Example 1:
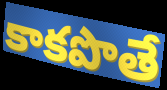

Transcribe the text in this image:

కాకపొతే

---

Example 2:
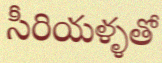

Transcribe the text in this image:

సీరియళ్ళతో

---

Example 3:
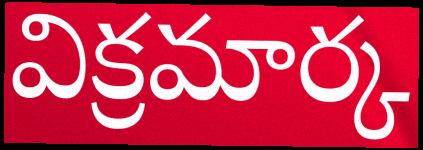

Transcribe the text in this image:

విక్రమార్క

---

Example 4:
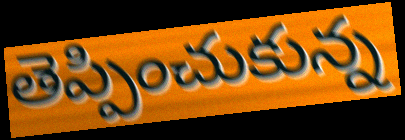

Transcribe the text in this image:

తెప్పించుకున్న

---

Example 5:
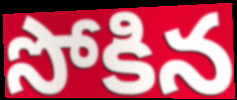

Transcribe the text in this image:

సోకిన